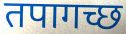
तपागच्छ